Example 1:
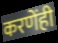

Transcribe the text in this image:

करणेंही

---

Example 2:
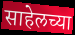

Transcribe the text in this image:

साहेलच्या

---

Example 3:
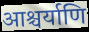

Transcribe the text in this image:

आश्चर्याणि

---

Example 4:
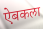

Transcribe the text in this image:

ऐबकला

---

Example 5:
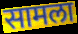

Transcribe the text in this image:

सामला